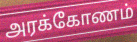
அரக்கோணம்